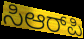
ಸಿಆರ್‌ಪಿ